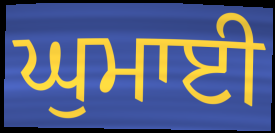
ਘੁਮਾਈ